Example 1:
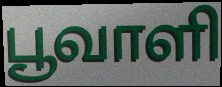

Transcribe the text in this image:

பூவாளி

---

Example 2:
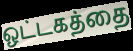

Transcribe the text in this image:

ஒட்டகத்தை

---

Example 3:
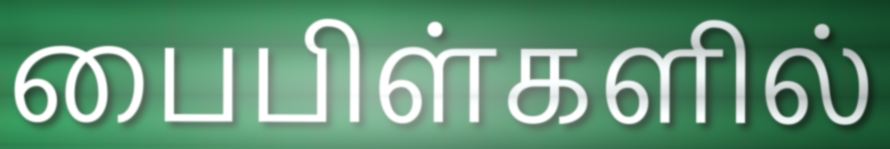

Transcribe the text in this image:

பைபிள்களில்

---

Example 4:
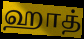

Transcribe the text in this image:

ஹாத்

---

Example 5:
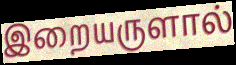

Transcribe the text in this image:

இறையருளால்